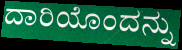
ದಾರಿಯೊಂದನ್ನು